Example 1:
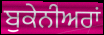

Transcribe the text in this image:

ਬੁਕੇਨੀਅਰਾਂ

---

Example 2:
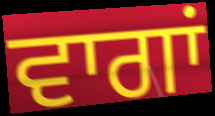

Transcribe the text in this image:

ਵਾਗਾਂ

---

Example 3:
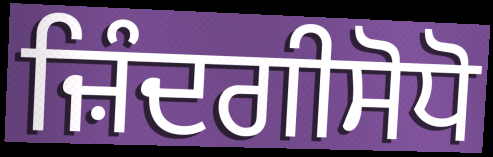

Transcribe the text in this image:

ਜ਼ਿੰਦਗੀਸੋਧੋ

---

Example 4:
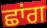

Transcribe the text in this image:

ਛਾਂਗ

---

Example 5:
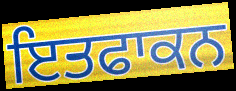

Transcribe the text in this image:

ਇਤਫਾਕਨ